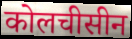
कोलचीसीन